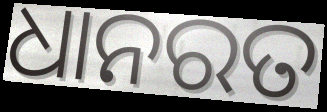
ଧାନରତ